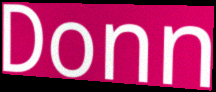
Donn